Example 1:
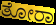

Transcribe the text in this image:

ತೋರಾ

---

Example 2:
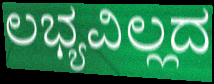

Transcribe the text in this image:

ಲಭ್ಯವಿಲ್ಲದ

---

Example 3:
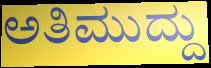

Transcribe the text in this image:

ಅತಿಮುದ್ದು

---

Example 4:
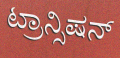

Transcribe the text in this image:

ಟ್ರಾನ್ಸಿಷನ್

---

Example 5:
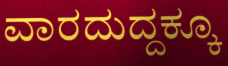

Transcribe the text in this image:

ವಾರದುದ್ದಕ್ಕೂ